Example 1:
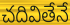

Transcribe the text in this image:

చదివితేనే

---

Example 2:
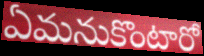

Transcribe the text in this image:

ఏమనుకొంటారో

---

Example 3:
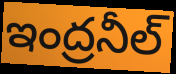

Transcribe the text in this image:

ఇంద్రనీల్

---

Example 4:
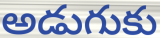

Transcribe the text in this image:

అడుగుకు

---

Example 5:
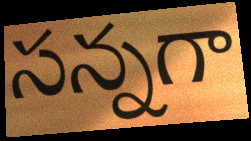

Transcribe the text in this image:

సన్నగా